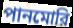
পানমোরি